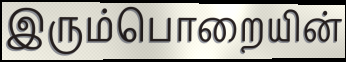
இரும்பொறையின்